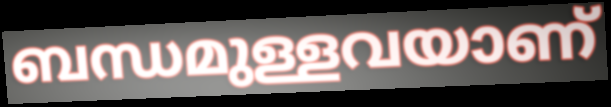
ബന്ധമുള്ളവയാണ്